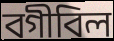
বগীবিল